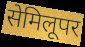
सेमिलूपर